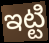
ఇట్టి